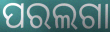
ପରଲଗା